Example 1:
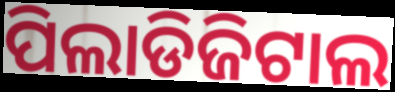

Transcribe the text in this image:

ପିଲାଡିଜିଟାଲ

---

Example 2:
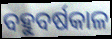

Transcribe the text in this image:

ବହୁବର୍ଷକାଳ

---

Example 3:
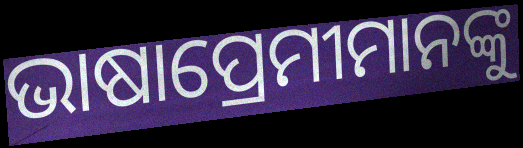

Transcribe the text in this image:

ଭାଷାପ୍ରେମୀମାନଙ୍କୁ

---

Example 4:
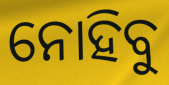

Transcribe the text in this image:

ନୋହିବୁ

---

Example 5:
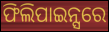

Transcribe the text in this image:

ଫିଲିପାଇନ୍ସରେ